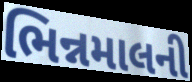
ભિન્નમાલની